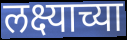
लक्ष्याच्या